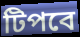
টিপবে